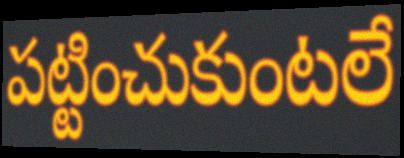
పట్టించుకుంటలే